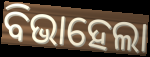
ବିଭାହେଲା